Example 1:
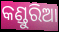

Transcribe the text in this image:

କଣ୍ଡୁରିଆ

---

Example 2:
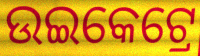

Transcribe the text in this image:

ଉଇକେଟ୍ରେ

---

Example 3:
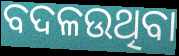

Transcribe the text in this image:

ବଦଳଉଥିବା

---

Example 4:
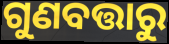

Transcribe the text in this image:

ଗୁଣବତ୍ତାରୁ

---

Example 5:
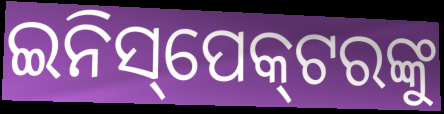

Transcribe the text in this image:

ଇନିସ୍‌ପେକ୍‌ଟରଙ୍କୁ